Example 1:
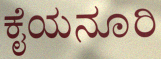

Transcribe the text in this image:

ಕೈಯನೂರಿ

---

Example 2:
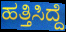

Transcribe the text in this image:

ಹತ್ತಿಸಿದ್ದೆ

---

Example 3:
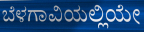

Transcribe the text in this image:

ಬೆಳಗಾವಿಯಲ್ಲಿಯೇ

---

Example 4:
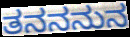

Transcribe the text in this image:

ತನನನುನ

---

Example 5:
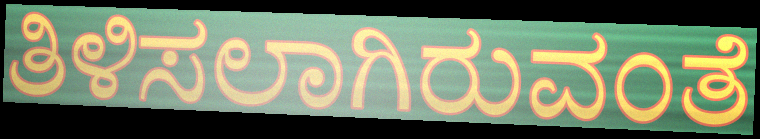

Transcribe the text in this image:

ತಿಳಿಸಲಾಗಿರುವಂತೆ